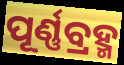
ପୂର୍ଣ୍ଣବ୍ରହ୍ମ